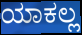
ಯಾಕಲ್ಲ